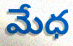
మేధ